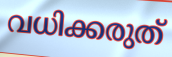
വധിക്കരുത്